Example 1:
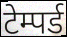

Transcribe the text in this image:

टेम्पर्ड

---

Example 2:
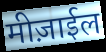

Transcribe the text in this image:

मीज़ाईल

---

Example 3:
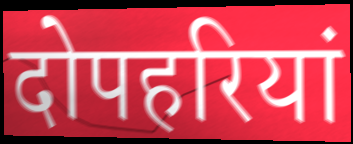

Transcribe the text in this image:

दोपहरियां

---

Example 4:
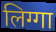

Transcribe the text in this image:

लिग्गा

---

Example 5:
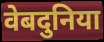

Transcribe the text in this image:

वेबदुनिया